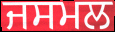
ਜਸਮਲ